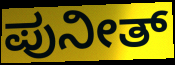
ಪುನೀತ್